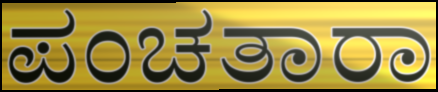
ಪಂಚತಾರಾ